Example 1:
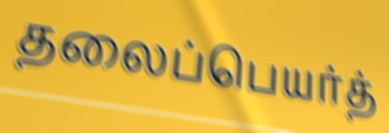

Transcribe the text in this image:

தலைப்பெயர்த்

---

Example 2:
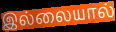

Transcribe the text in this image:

இல்லையால்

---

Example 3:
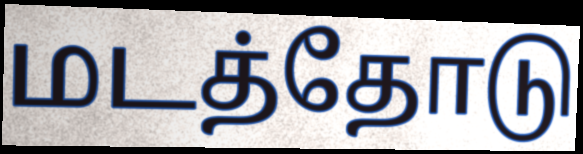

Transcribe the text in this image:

மடத்தோடு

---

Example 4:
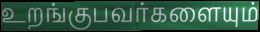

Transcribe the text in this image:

உறங்குபவர்களையும்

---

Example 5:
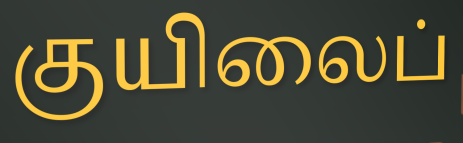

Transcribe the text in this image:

குயிலைப்